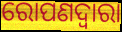
ରୋପଣଦ୍ୱାରା